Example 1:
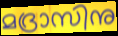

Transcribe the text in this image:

മദ്രാസിനു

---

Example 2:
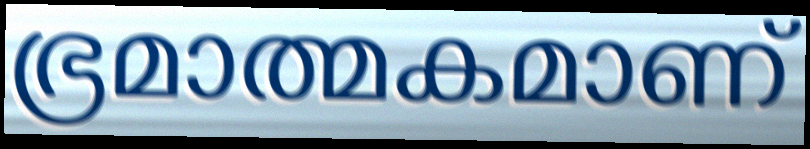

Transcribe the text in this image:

ഭ്രമാത്മകമാണ്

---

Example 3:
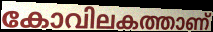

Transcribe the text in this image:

കോവിലകത്താണ്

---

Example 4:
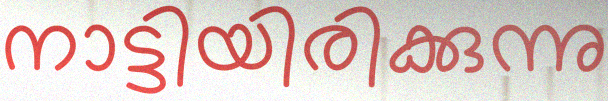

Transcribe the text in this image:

നാട്ടിയിരിക്കുന്നു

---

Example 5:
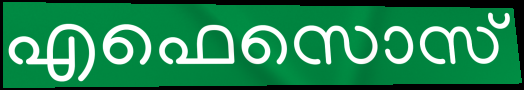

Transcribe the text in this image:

എഫെസൊസ്